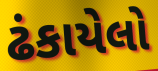
ઢંકાયેલો